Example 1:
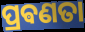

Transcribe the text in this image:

ପ୍ରଵଣତା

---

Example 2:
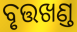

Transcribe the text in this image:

ବୃତ୍ତଖଣ୍ଡ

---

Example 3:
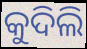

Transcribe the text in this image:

କୁଦିଲି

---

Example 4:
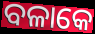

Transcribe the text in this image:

ବଳାକେ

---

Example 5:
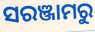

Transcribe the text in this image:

ସରଞ୍ଜାମରୁ